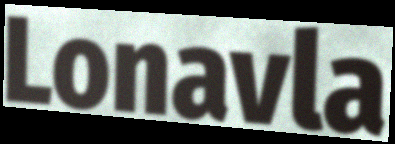
Lonavla